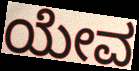
ಯೇವ